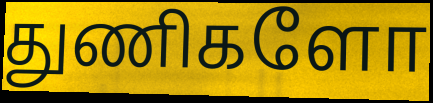
துணிகளோ